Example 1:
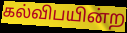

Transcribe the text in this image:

கல்விபயின்ற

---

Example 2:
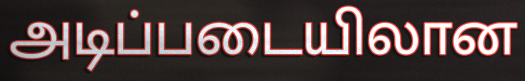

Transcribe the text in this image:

அடிப்படையிலான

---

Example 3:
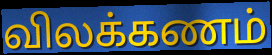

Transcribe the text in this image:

விலக்கணம்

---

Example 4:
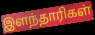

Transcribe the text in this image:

இளந்தாரிகள்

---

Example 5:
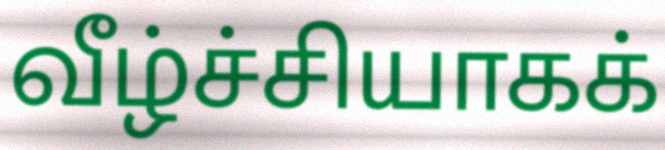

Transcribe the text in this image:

வீழ்ச்சியாகக்